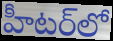
హీటర్‌లో